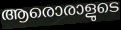
ആരൊരാളുടെ